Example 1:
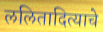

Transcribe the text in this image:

ललितादित्याचे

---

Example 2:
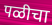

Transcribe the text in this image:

पळीचा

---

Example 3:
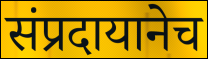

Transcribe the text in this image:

संप्रदायानेच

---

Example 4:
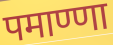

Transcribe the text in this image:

पमाण्णा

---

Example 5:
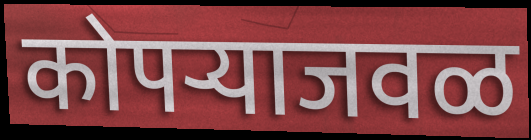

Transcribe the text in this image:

कोपऱ्याजवळ